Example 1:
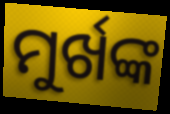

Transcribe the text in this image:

ମୁର୍ଖଙ୍କ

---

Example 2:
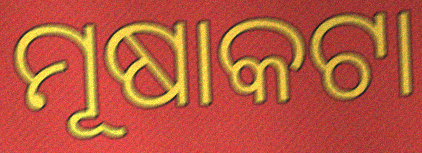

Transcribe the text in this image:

ମୂଷାକଟା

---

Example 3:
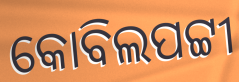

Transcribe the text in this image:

କୋବିଲପଟ୍ଟୀ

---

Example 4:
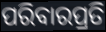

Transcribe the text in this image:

ପରିବାରପ୍ରତି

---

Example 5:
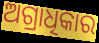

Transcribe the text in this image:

ଅଗ୍ରାଧିକାର